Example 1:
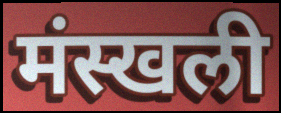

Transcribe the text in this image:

मंस्खली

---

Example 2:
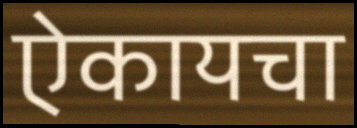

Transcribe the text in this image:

ऐकायचा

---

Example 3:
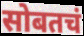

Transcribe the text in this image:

सोबतचं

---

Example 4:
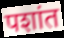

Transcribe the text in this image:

पशांत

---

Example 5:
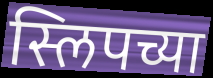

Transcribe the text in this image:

स्लिपच्या